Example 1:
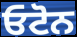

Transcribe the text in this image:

ਓਟੋਨ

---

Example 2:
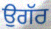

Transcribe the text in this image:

ਉਗੱਰ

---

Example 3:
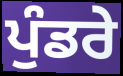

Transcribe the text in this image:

ਪੁੰਡਰੇ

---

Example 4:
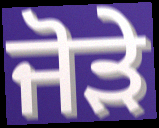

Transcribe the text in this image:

ਜੋਡ਼ੇ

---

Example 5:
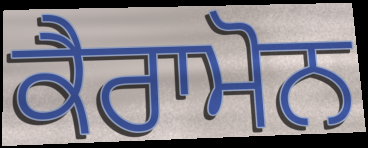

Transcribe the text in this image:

ਕੈਰਾਮੋਨ